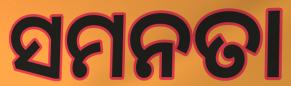
ସମନତା